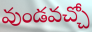
వుండవచ్చో